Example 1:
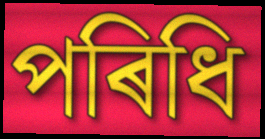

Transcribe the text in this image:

পৰিধি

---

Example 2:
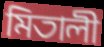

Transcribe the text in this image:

মিতালী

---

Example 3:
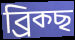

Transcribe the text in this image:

ব্ৰিক্ছ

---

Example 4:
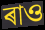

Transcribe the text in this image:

ৰাও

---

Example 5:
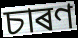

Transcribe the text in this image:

চাৰণ